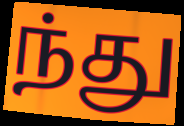
ந்து